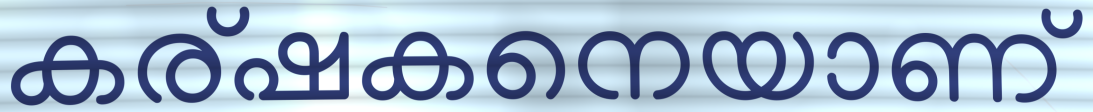
കര്ഷകനെയാണ്